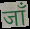
जाँ